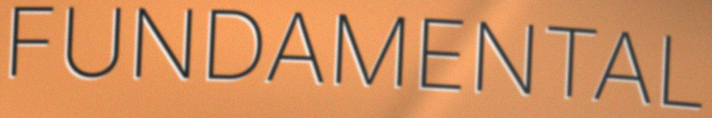
FUNDAMENTAL